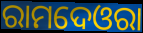
ରାମଦେଓରା